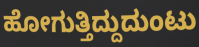
ಹೋಗುತ್ತಿದ್ದುದುಂಟು